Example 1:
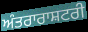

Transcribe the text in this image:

ਅੰਤਰਾਰਾਸ਼ਟਰੀ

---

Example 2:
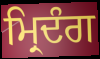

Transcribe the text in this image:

ਮ੍ਰਿਦੰਗ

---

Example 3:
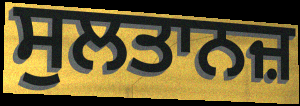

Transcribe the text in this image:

ਸੁਲਤਾਨਜ਼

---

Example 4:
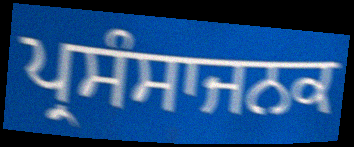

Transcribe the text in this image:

ਪ੍ਰਸੰਸਾਜਨਕ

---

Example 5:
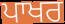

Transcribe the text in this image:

ਪਾਖਰ